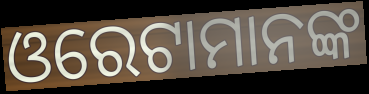
ଓରେଟାମାନଙ୍କ